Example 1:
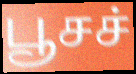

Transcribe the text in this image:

பூசச்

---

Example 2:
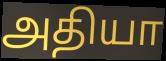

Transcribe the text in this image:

அதியா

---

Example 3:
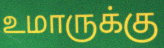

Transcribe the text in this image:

உமாருக்கு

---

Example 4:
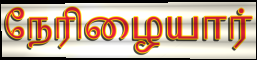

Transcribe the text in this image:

நேரிழையார்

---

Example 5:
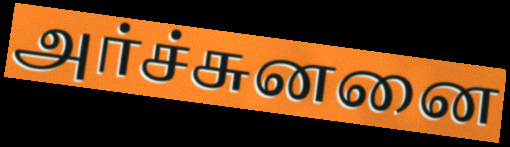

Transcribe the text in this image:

அர்ச்சுனனை